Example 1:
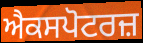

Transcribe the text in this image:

ਐਕਸਪੋਟਰਜ਼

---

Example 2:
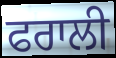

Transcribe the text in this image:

ਫਰਾਲੀ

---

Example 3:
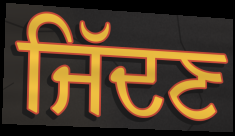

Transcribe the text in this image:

ਜਿੱਦਣ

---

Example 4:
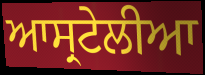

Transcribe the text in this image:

ਆਸ੍ਰਟੇਲੀਆ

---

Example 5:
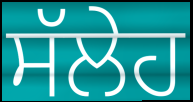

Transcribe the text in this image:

ਸੱਲੇਹ